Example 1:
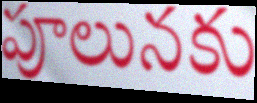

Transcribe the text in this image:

పూలునకు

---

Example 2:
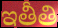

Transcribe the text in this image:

ఇతీతి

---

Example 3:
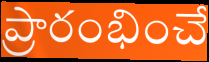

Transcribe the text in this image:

ప్రారంభించే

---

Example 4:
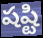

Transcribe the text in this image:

షష్టి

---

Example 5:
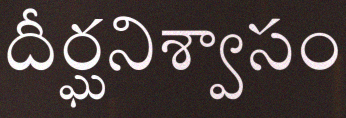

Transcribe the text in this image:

దీర్ఘనిశ్వాసం